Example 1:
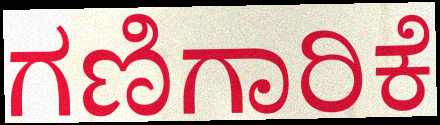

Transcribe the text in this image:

ಗಣಿಗಾರಿಕೆ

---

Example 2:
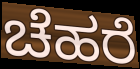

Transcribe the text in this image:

ಚೆಹರೆ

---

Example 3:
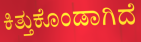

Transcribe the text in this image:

ಕಿತ್ತುಕೊಂಡಾಗಿದೆ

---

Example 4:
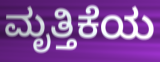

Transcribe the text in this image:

ಮೃತ್ತಿಕೆಯ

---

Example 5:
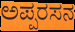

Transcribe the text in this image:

ಅಪ್ಪರಸನ